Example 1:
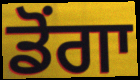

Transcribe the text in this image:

ਡੋਂਗਾ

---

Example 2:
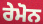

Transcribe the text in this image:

ਰੇਮੋਨ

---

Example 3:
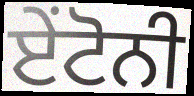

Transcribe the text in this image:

ਏਂਟੋਨੀ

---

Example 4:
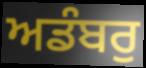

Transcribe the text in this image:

ਅਡੰਬਰੁ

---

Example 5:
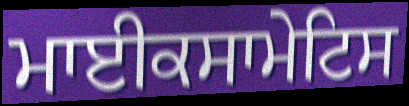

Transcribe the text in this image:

ਮਾਈਕਸਾਮੇਟਿਸ